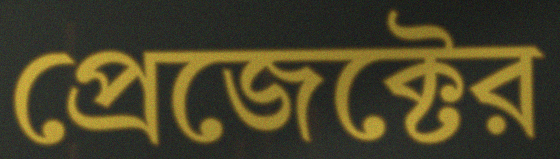
প্রেজেক্টের